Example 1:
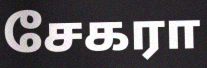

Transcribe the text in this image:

சேகரா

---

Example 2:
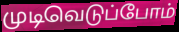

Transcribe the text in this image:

முடிவெடுப்போம்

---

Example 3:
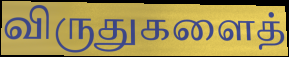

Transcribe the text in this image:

விருதுகளைத்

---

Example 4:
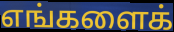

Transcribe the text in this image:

எங்களைக்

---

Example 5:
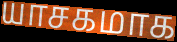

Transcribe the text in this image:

யாசகமாக